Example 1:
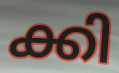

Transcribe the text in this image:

ക്കി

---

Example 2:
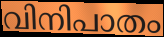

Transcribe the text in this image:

വിനിപാതം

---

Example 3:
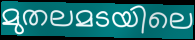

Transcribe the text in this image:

മുതലമടയിലെ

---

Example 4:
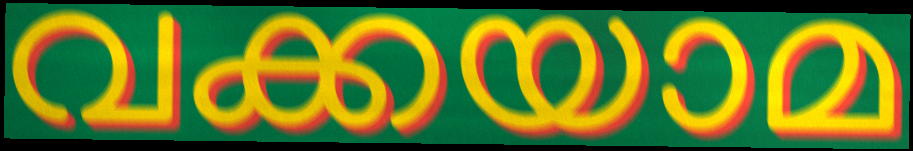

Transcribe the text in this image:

വക്കയാമ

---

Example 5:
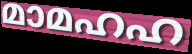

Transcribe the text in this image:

മാമഹഹ